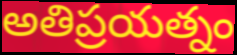
అతిప్రయత్నం